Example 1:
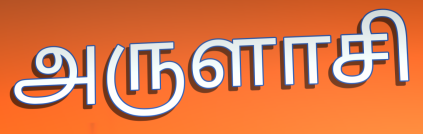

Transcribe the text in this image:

அருளாசி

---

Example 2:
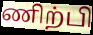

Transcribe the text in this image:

ணிற்பி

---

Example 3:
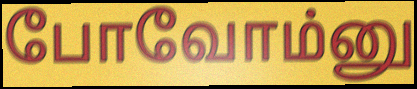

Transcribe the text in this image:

போவோம்னு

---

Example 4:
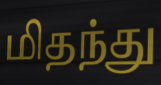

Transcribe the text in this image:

மிதந்து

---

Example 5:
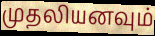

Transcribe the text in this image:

முதலியனவும்